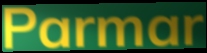
Parmar